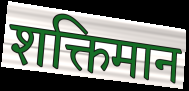
शक्तिमान